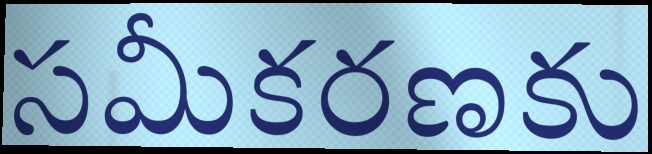
సమీకరణకు